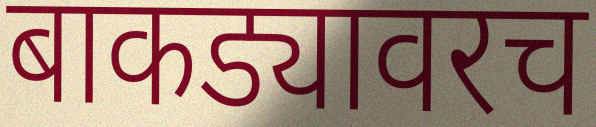
बाकड्यावरच